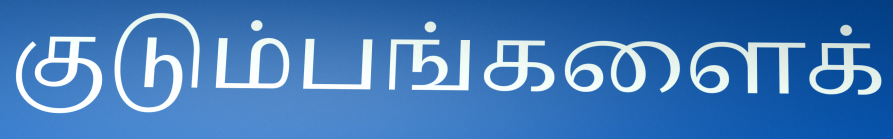
குடும்பங்களைக்